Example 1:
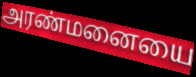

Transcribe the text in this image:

அரண்மனையை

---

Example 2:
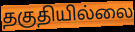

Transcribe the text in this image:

தகுதியில்லை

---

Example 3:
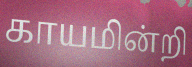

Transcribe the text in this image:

காயமின்றி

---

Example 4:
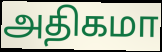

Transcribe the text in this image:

அதிகமா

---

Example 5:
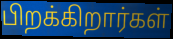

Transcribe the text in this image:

பிறக்கிறார்கள்